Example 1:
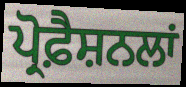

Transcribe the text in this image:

ਪ੍ਰੋਫ਼ੈਸ਼ਨਲਾਂ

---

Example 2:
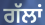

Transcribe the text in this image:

ਗੱਲਾਂ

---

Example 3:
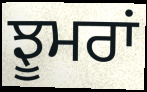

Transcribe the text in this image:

ਝੂਮਰਾਂ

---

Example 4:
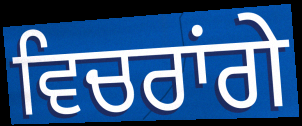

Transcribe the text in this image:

ਵਿਚਰਾਂਗੇ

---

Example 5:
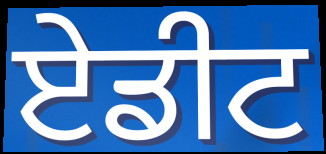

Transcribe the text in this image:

ਏਡੀਟ